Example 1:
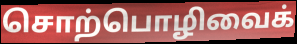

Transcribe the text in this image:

சொற்பொழிவைக்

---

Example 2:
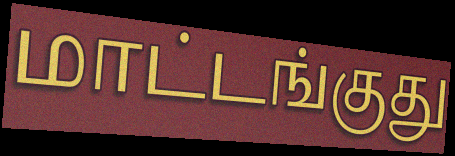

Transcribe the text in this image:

மாட்டங்குது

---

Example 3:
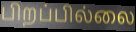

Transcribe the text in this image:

பிறப்பில்லை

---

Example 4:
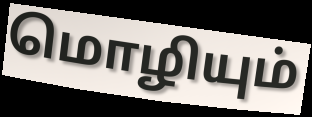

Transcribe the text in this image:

மொழியும்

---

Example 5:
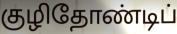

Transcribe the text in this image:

குழிதோண்டிப்